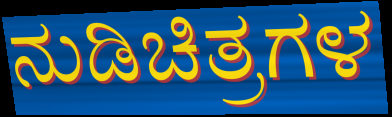
ನುಡಿಚಿತ್ರಗಳ